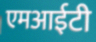
एमआईटी